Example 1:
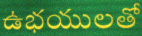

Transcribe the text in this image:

ఉభయులతో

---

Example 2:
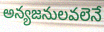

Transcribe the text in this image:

అన్యజనులవలెనే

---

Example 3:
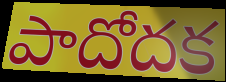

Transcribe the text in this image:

పాదోదక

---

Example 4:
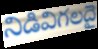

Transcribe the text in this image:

నిడివిగలదై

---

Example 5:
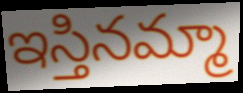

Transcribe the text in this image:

ఇస్తినమ్మా